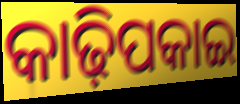
କାଢ଼ିପକାଇ